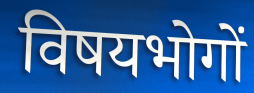
विषयभोगों